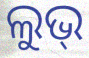
ଲୁଭ୍